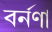
বর্নণা